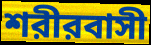
শরীরবাসী